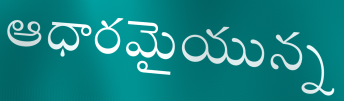
ఆధారమైయున్న